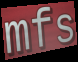
mfs